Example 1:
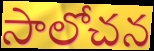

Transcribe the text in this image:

సాలోచన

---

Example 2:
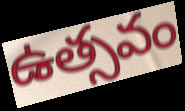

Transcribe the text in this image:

ఉత్సవం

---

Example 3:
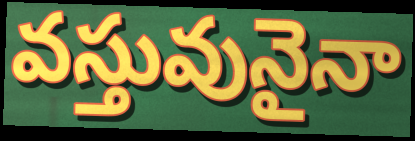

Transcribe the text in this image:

వస్తువునైనా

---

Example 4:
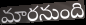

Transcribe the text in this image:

మారనుంది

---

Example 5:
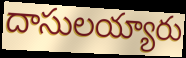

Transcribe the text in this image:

దాసులయ్యారు